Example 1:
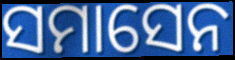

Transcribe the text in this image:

ସମାସେନ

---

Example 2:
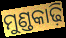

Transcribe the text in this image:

ମୁଣ୍ଡକାଢ଼ି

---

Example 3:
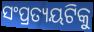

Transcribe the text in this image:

ସଂପ୍ରତ୍ୟୟଟିକୁ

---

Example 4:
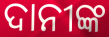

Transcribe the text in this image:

ଦାନୀଙ୍କ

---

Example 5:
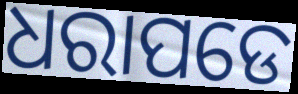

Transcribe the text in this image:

ଧରାପଡେ